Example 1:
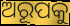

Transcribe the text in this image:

ଅରୂପକୁ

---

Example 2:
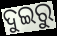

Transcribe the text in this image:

ଦୁଇରୁ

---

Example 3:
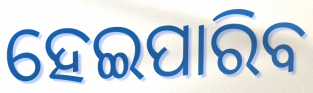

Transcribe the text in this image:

ହେଇପାରିବ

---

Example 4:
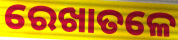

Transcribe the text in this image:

ରେଖାତଳେ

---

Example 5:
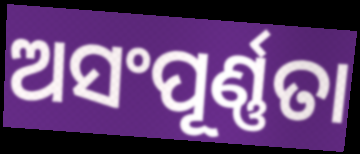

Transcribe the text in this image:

ଅସଂପୂର୍ଣ୍ଣତା